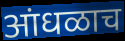
आंधळाच